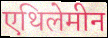
एथिलेमीन